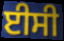
ਈਸੀ